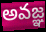
అవజ్ఞ